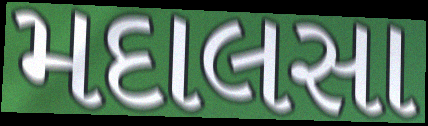
મદાલસા